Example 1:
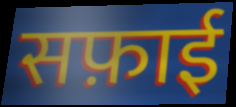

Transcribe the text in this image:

सफ़ाई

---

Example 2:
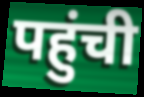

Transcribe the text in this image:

पहुंची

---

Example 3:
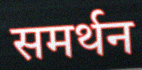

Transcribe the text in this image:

समर्थन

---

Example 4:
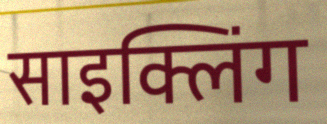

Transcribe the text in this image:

साइक्लिंग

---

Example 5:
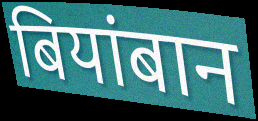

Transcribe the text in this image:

बियांबान